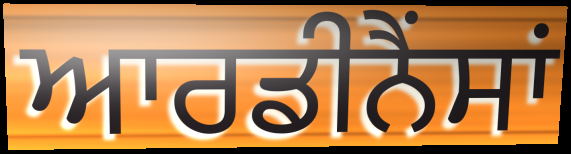
ਆਰਡੀਨੈਂਸਾਂ